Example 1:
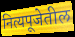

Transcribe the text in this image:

नित्यपूजेतील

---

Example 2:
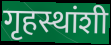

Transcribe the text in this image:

गृहस्थांशी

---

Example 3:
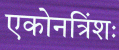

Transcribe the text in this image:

एकोनत्रिंशः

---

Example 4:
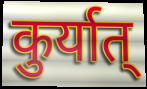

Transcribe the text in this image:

कुर्यात्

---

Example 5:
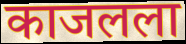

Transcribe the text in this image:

काजलला